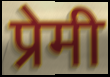
प्रेमी